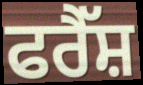
ਫਰੈੱਸ਼